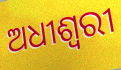
ଅଧୀଶ୍ୱରୀ